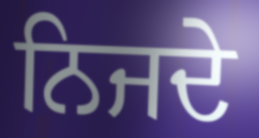
ਨਿਜਦੇ